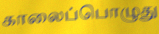
காலைப்பொழுது